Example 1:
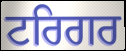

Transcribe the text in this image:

ਟਰਿਗਰ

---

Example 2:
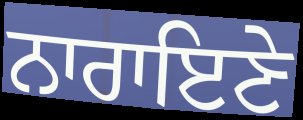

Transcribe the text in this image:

ਨਾਰਾਇਣੇ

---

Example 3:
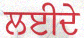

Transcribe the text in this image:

ਲਈਦੇ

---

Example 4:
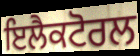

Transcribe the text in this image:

ਇਲੈਕਟੋਰਲ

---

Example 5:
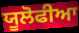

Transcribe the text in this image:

ਯੂਲੋਫੀਆ